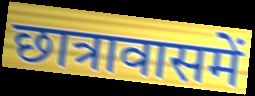
छात्रावासमें